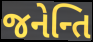
જનેન્તિ